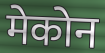
मेकोन